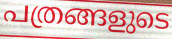
പത്രങ്ങളുടെ